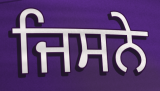
ਜਿਸਨੇ